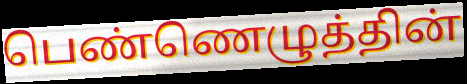
பெண்ணெழுத்தின்